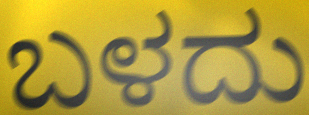
ಬಳದು